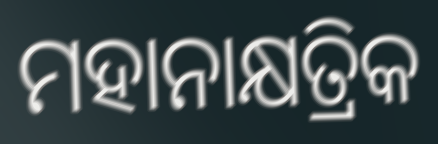
ମହାନାକ୍ଷତ୍ରିକ